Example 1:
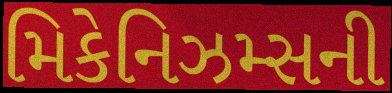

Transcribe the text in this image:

મિકેનિઝમ્સની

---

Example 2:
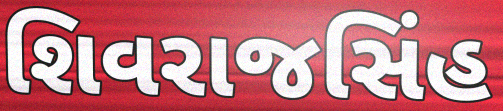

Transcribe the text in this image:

શિવરાજસિંહ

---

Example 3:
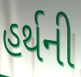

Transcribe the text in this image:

હર્થની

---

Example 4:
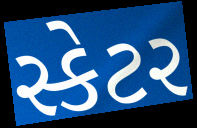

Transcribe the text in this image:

સ્કેટર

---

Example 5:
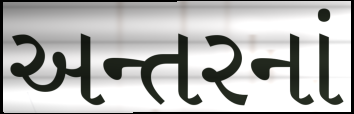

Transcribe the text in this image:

અન્તરનાં